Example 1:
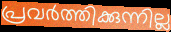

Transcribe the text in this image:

പ്രവർത്തിക്കുന്നില്ല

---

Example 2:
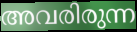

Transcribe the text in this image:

അവരിരുന്ന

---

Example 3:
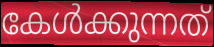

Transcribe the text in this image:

കേൾക്കുന്നത്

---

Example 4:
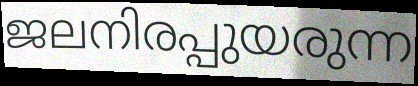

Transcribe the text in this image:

ജലനിരപ്പുയരുന്ന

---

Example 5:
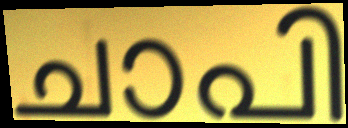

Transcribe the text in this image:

ചാപി